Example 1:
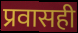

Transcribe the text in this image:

प्रवासही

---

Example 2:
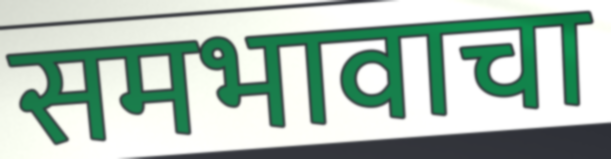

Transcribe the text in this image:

समभावाचा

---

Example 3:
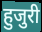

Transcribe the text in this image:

हुजुरी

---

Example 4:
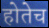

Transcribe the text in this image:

होतेच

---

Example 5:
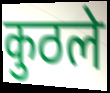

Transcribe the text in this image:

कुठले